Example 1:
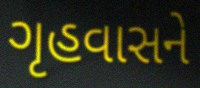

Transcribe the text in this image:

ગૃહવાસને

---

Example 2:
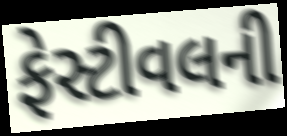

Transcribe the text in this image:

ફેસ્ટીવલની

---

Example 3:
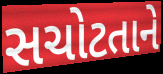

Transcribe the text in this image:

સચોટતાને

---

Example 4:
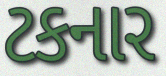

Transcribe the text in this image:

ટકનાર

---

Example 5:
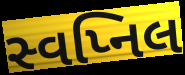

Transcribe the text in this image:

સ્વપ્નિલ